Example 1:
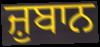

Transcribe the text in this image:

ਜ਼ੁਬਾਨ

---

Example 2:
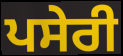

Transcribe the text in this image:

ਪਸੇਰੀ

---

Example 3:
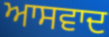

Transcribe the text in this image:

ਆਸਵਾਦ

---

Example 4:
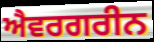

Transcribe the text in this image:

ਐਵਰਗਰੀਨ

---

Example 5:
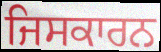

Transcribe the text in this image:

ਜਿਸਕਾਰਨ